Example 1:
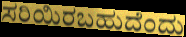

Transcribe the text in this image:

ಸರಿಯಿರಬಹುದೆಂದು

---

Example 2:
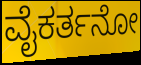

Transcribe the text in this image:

ವೈಕರ್ತನೋ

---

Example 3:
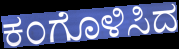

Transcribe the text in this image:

ಕಂಗೊಳಿಸಿದ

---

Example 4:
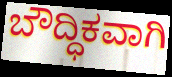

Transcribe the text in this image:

ಬೌದ್ಧಿಕವಾಗಿ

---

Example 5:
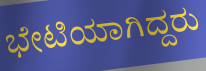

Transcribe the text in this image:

ಭೇಟಿಯಾಗಿದ್ದರು